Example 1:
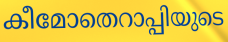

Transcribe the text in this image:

കീമോതെറാപ്പിയുടെ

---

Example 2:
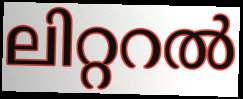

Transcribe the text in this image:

ലിറ്ററൽ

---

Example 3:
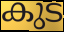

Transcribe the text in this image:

കുട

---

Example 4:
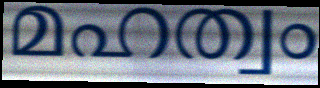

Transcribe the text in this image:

മഹത്വം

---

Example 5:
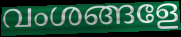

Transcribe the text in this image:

വംശങ്ങളേ